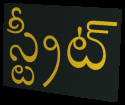
స్ట్రీట్